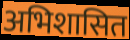
अभिशासित